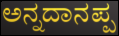
ಅನ್ನದಾನಪ್ಪ